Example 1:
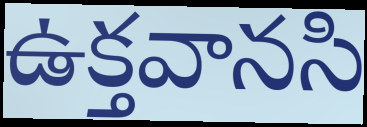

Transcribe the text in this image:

ఉక్తవానసి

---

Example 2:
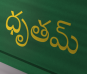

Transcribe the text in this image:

ధృతమ్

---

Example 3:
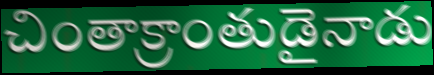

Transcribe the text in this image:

చింతాక్రాంతుడైనాడు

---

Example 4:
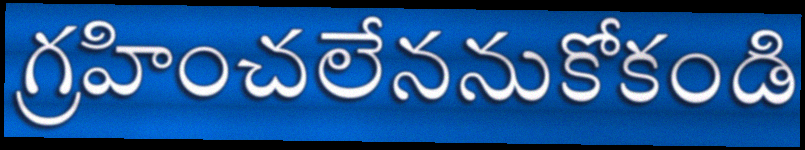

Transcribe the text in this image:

గ్రహించలేననుకోకండి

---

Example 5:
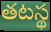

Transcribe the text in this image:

తటస్థ